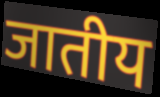
जातीय